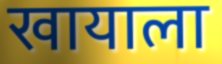
खायाला